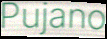
Pujano